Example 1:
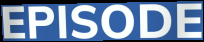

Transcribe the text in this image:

EPISODE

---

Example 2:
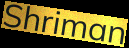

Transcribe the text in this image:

Shriman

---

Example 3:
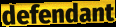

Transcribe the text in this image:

defendant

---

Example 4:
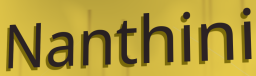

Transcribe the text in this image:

Nanthini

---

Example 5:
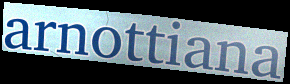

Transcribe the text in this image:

arnottiana